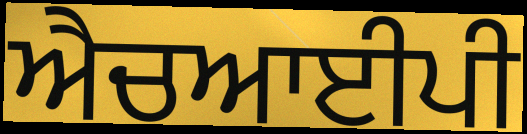
ਐਚਆਈਪੀ